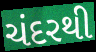
ચંદરથી